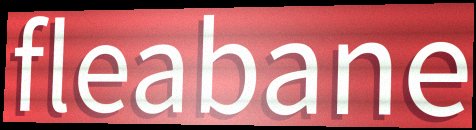
fleabane